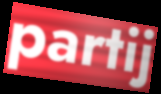
partij